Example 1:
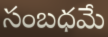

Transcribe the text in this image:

సంబధమే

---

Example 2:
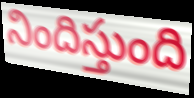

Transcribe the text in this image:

నిందిస్తుంది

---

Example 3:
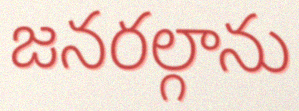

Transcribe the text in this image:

జనరల్గాను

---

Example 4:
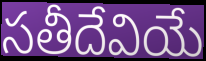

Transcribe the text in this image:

సతీదేవియే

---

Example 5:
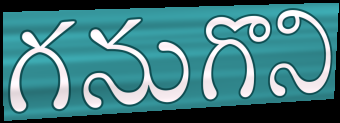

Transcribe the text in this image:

గనుగొని